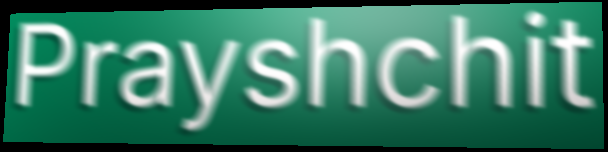
Prayshchit